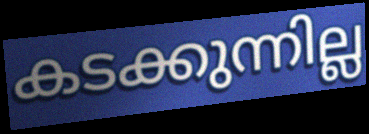
കടക്കുന്നില്ല